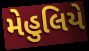
મેહુલિયે